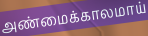
அண்மைக்காலமாய்